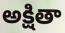
అక్షితా